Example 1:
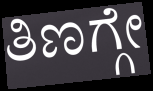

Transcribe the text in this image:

ತಿಣಗ್ಗೇ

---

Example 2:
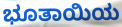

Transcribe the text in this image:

ಭೂತಾಯಿಯ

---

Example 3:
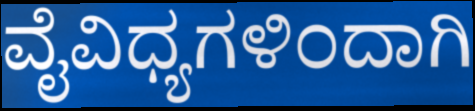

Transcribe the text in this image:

ವೈವಿಧ್ಯಗಳಿಂದಾಗಿ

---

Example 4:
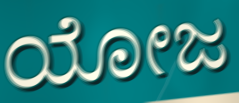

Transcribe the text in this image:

ಯೋಜ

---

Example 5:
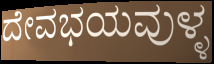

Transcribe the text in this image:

ದೇವಭಯವುಳ್ಳ